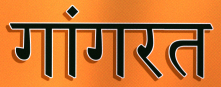
गांगरत